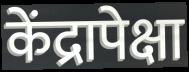
केंद्रापेक्षा